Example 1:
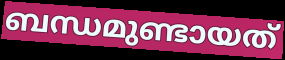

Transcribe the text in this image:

ബന്ധമുണ്ടായത്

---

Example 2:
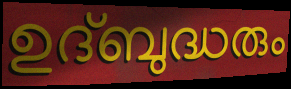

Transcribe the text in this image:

ഉദ്ബുദ്ധരും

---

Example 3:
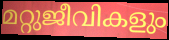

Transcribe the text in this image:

മറ്റുജീവികളും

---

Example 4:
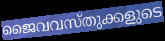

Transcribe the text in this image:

ജൈവവസ്തുക്കളുടെ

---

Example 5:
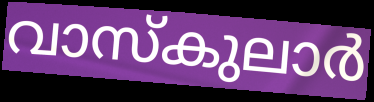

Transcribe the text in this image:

വാസ്കുലാർ